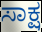
ಸಾಕ್ಷ